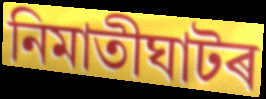
নিমাতীঘাটৰ